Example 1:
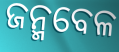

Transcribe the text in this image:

ଜନ୍ମବେଳ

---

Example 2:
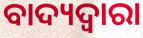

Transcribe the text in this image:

ବାଦ୍ୟଦ୍ୱାରା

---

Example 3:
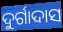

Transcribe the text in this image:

ଦୁର୍ଗାଦାସ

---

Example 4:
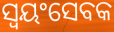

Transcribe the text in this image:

ସ୍ୱୟଂସେବକ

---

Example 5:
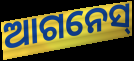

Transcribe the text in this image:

ଆଗନେସ୍